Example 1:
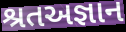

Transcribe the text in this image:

શ્રતઅજ્ઞાન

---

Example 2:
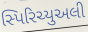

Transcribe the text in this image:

સ્પિરિચ્યુઅલી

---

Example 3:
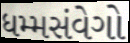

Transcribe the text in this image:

ધમ્મસંવેગો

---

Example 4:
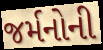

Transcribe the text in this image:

જર્મનોની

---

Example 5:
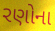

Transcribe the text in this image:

રણોના